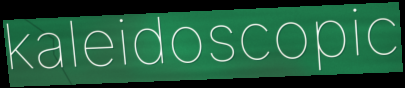
kaleidoscopic